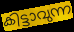
കിട്ടാവുന്ന